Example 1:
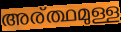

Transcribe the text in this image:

അര്ത്ഥമുള്ള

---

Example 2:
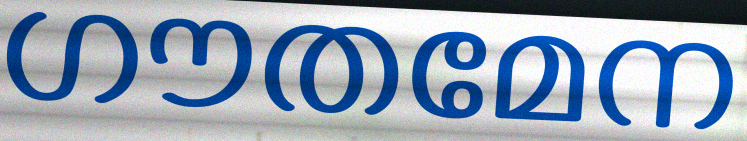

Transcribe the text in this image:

ഗൗതമേന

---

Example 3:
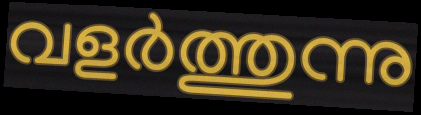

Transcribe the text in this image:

വളർത്തുന്നു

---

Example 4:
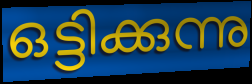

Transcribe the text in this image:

ഒട്ടിക്കുന്നു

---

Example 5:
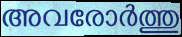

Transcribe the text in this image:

അവരോർത്തു